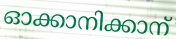
ഓക്കാനിക്കാന്